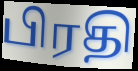
பிரதி